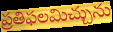
ప్రతిఫలమిచ్చును